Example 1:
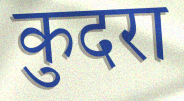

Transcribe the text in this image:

कुदरा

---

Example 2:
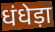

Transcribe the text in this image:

धंधेड़ा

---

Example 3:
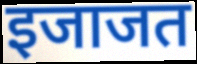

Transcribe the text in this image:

इजाजत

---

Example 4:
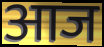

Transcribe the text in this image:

आज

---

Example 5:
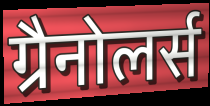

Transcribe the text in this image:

ग्रैनोलर्स